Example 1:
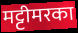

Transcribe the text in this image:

मट्टीमरका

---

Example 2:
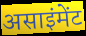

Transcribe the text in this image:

असाइंमेंट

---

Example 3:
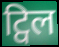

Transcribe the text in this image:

ट्विल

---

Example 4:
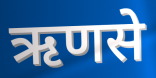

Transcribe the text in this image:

ऋणसे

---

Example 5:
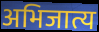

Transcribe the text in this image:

अभिजात्य